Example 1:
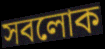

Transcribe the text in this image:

সবলোক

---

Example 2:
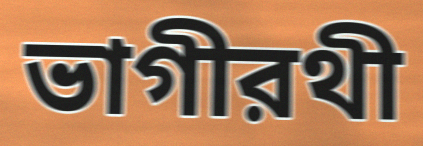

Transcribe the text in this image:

ভাগীরথী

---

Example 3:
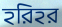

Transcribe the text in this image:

হরিহর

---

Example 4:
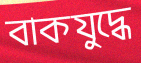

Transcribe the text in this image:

বাকযুদ্ধে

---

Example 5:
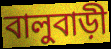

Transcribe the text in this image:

বালুবাড়ী